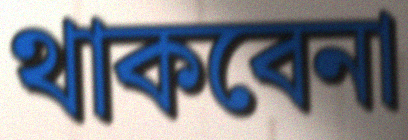
থাকবেনা